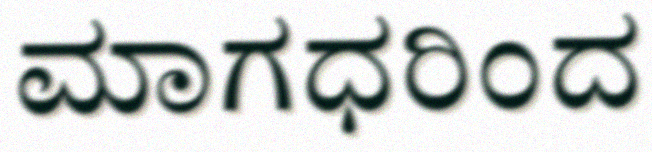
ಮಾಗಧರಿಂದ